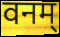
वनम्